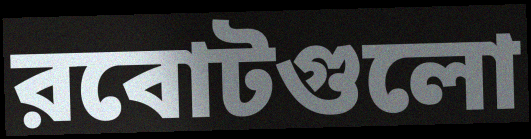
রবোটগুলো